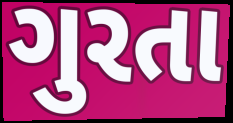
ગુરતા